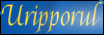
Uripporul